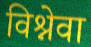
विश्नेवा